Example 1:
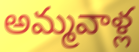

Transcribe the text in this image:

అమ్మవాళ్ల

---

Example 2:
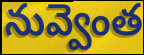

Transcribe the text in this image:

నువ్వెంత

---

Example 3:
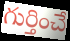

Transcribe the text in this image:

గుర్తించే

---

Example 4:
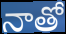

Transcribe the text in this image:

నాతో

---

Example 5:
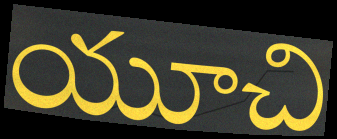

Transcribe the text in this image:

యూచి